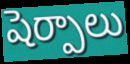
షెర్పాలు